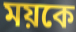
ময়কে